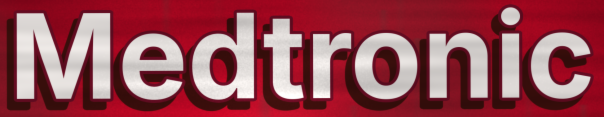
Medtronic